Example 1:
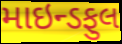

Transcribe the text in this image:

માઇન્ડફુલ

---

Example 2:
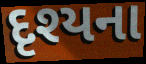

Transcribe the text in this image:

દૃશ્યના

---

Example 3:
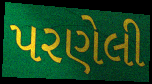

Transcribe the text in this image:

પરણેલી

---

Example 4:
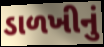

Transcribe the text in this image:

ડાળખીનું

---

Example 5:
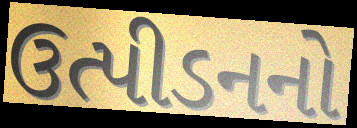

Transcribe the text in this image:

ઉત્પીડનનો